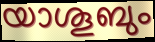
യാശൂബും